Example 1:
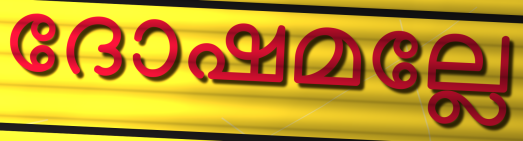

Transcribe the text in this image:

ദോഷമല്ലേ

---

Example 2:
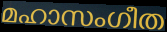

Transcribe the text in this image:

മഹാസംഗീത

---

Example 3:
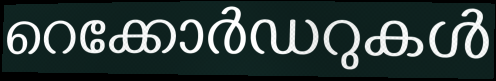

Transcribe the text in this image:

റെക്കോർഡറുകൾ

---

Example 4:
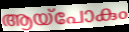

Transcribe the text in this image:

ആയ്പോകും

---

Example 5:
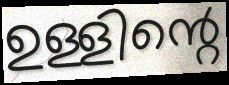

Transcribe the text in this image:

ഉള്ളിന്റെ